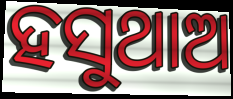
ହସୁଥାଅ